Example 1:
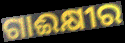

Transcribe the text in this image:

ଗାଈକ୍ଷୀର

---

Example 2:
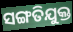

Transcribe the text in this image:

ସଙ୍ଗତିଯୁକ୍ତ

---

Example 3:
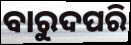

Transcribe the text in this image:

ବାରୁଦପରି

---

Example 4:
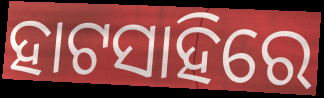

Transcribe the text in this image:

ହାଟସାହିରେ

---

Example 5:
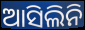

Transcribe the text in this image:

ଆସିଲିନି